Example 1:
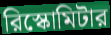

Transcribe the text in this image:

রিস্কোমিটার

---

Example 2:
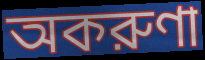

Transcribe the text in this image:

অকরুণা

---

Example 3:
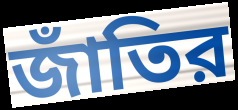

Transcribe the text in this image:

জাঁতির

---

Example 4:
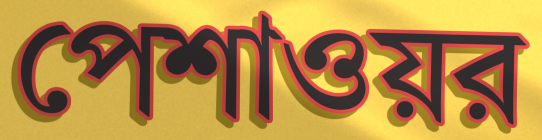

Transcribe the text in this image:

পেশাওয়র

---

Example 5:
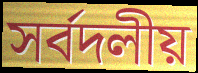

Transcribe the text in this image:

সর্বদলীয়